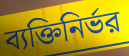
ব্যক্তিনির্ভর